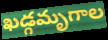
ఖడ్గమృగాల